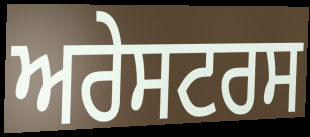
ਅਰੇਸਟਰਸ